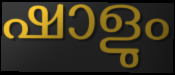
ഷാളും